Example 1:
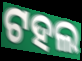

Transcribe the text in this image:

ଟହଲ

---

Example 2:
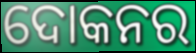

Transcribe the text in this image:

ଦୋକନର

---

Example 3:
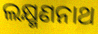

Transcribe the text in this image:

ଲକ୍ଷ୍ମଣନାଥ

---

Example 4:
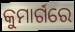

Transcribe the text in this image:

କୁମାର୍ଗରେ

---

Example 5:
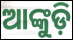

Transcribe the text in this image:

ଆଙ୍କୁଡ଼ି